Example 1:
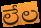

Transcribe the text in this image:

లేల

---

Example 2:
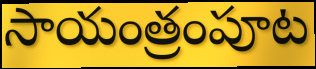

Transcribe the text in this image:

సాయంత్రంపూట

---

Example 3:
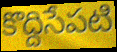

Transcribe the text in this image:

కొద్దిసేపటి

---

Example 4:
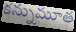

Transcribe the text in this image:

కన్నుమూత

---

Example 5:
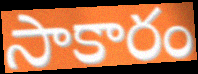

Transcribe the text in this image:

సాకారం